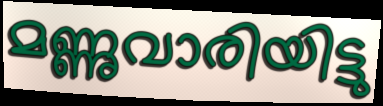
മണ്ണുവാരിയിട്ടു